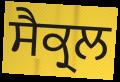
ਸੈਕ੍ਰਲ